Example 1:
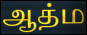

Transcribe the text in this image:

ஆத்ம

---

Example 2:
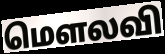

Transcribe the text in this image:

மௌலவி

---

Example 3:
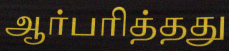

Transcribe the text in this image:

ஆர்பரித்தது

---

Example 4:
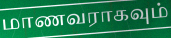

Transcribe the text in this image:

மாணவராகவும்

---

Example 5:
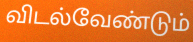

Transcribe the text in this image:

விடல்வேண்டும்